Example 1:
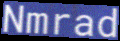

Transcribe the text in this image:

Nmrad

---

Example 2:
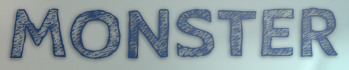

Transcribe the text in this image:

MONSTER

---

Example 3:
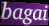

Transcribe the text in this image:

bagai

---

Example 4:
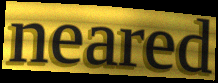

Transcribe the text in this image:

neared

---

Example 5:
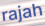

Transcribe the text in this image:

rajah